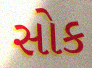
સોક